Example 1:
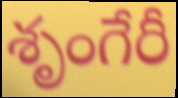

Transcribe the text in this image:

శృంగేరీ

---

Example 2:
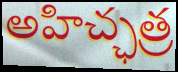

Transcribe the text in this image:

అహిచ్ఛత్ర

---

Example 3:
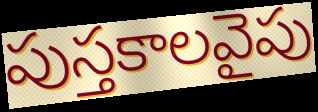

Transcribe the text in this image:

పుస్తకాలవైపు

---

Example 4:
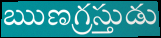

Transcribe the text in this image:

ఋణగ్రస్తుడు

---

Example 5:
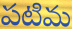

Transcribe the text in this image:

పటిమ